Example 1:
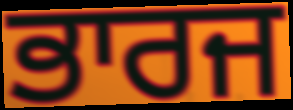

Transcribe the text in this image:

ਭਾਰਜ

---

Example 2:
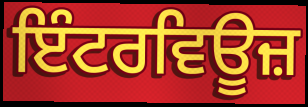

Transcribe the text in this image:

ਇੰਟਰਵਿਊਜ਼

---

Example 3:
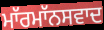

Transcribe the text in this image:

ਮਾੱਰਮਾੱਨਸਵਾਦ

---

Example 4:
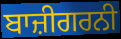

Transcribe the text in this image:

ਬਾਜ਼ੀਗਰਨੀ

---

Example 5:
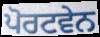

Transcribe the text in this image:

ਪੋਰਟਵੇਨ